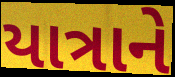
યાત્રાને